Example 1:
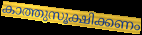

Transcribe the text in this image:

കാത്തുസൂക്ഷിക്കണം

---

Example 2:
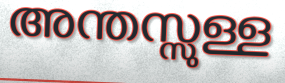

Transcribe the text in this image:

അന്തസ്സുള്ള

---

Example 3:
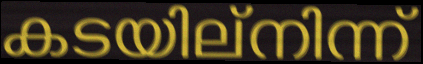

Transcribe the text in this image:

കടയില്നിന്ന്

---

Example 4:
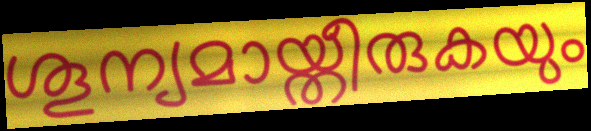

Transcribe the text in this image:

ശൂന്യമായ്തീരുകയും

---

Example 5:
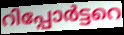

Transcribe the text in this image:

റിപ്പോർട്ടറെ